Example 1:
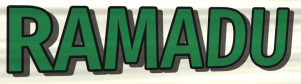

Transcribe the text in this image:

RAMADU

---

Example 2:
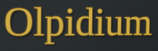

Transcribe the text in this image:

Olpidium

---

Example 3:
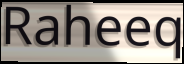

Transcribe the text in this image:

Raheeq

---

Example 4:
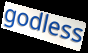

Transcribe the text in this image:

godless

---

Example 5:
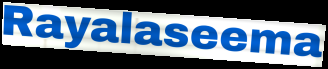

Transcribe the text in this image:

Rayalaseema